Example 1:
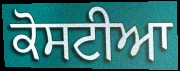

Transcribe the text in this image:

ਕੋਸਟੀਆ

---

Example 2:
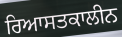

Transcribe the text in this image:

ਰਿਆਸਤਕਾਲੀਨ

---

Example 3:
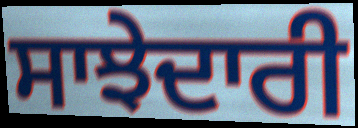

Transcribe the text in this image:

ਸਾਝੇਦਾਰੀ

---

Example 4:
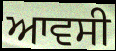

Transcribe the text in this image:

ਆਵਸੀ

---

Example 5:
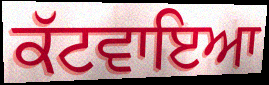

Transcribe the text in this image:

ਕੱਟਵਾਇਆ